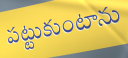
పట్టుకుంటాను